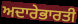
ਅਦਾਰੇਭਾਰਤੀ